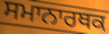
ਸਮਾਨਾਰਥਕ